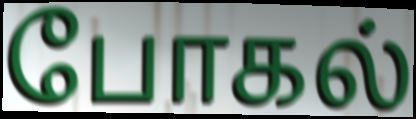
போகல்